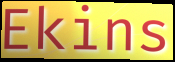
Ekins